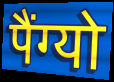
पैंग्यो